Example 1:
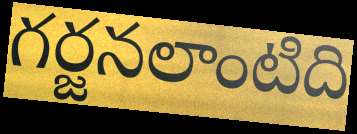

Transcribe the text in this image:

గర్జనలాంటిది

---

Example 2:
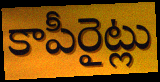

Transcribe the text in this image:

కాపీరైట్లు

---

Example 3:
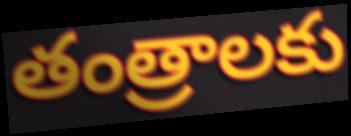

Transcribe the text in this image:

తంత్రాలకు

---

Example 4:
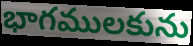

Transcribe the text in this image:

భాగములకును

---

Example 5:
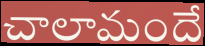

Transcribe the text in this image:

చాలామందే